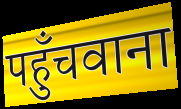
पहुँचवाना